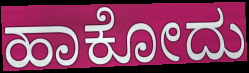
ಹಾಕೋದು